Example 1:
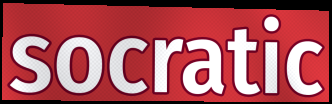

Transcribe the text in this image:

socratic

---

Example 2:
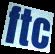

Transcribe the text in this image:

ftc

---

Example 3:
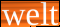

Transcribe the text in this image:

welt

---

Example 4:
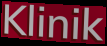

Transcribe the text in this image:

Klinik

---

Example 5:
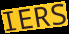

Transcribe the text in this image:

IERS